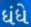
ધંધે